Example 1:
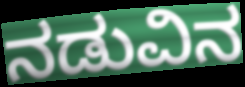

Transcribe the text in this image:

ನಡುವಿನ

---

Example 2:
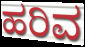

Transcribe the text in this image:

ಹರಿವ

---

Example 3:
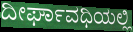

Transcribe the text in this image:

ದೀರ್ಘಾವಧಿಯಲ್ಲಿ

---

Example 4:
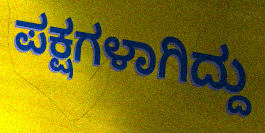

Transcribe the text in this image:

ಪಕ್ಷಗಳಾಗಿದ್ದು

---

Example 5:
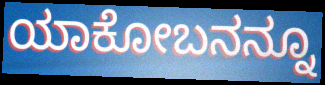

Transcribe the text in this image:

ಯಾಕೋಬನನ್ನೂ